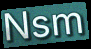
Nsm